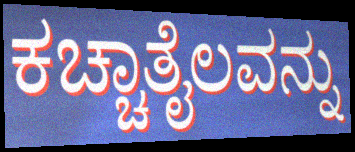
ಕಚ್ಚಾತೈಲವನ್ನು